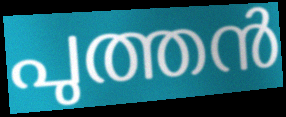
പുത്തൻ